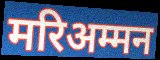
मरिअम्मन